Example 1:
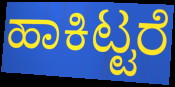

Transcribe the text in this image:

ಹಾಕಿಟ್ಟರೆ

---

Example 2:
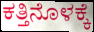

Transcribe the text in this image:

ಕತ್ತಿನೊಳಕ್ಕೆ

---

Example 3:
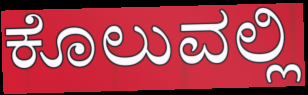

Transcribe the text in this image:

ಕೊಲುವಲ್ಲಿ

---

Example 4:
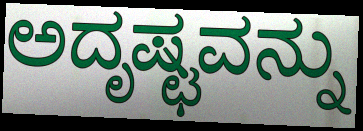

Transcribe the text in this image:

ಅದೃಷ್ಟವನ್ನು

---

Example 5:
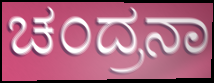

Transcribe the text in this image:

ಚಂದ್ರನಾ